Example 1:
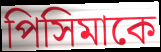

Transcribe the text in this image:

পিসিমাকে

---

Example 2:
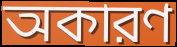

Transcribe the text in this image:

অকারণ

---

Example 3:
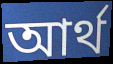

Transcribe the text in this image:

আর্থ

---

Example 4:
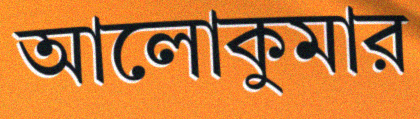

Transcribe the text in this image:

আলোকুমার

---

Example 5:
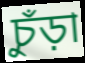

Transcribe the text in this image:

চুঁড়া